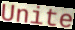
Unite